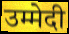
उम्मेदी